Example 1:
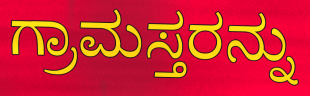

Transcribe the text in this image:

ಗ್ರಾಮಸ್ತರನ್ನು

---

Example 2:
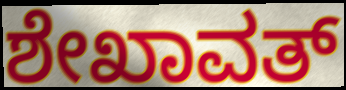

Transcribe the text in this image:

ಶೇಖಾವತ್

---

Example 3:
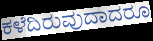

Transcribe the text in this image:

ಕಳೆದಿರುವುದಾದರೂ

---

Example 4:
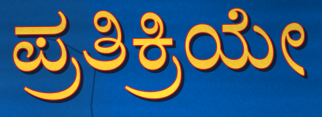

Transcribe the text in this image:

ಪ್ರತಿಕ್ರಿಯೇ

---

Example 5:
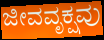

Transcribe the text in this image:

ಜೀವವೃಕ್ಷವು